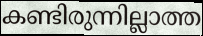
കണ്ടിരുന്നില്ലാത്ത